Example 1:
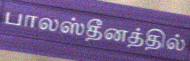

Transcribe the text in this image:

பாலஸ்தீனத்தில்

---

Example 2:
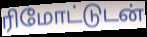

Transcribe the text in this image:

ரிமோட்டுடன்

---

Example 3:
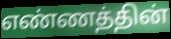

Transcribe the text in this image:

எண்ணத்தின்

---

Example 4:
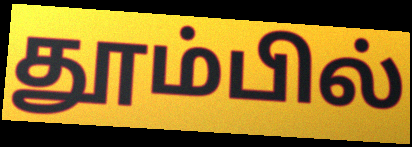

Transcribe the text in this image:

தூம்பில்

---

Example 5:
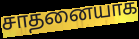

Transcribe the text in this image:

சாதனையாக